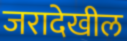
जरादेखील